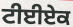
ਟੀਈਏਕ